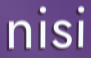
nisi